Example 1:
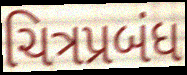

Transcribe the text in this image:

ચિત્રપ્રબંધ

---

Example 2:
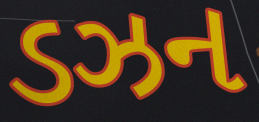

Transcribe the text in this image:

ડઝન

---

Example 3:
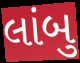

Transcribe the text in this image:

લાંબુ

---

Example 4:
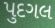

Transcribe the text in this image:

પુદગલ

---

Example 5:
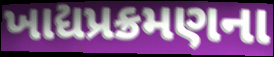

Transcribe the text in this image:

ખાદ્યપ્રક્રમણના